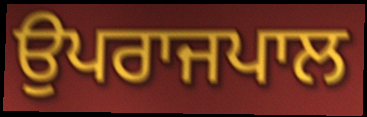
ਉਪਰਾਜਪਾਲ